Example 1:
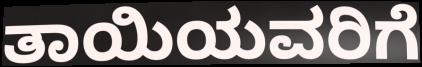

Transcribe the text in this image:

ತಾಯಿಯವರಿಗೆ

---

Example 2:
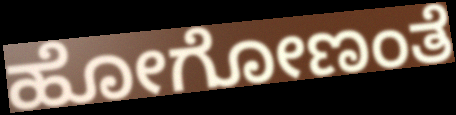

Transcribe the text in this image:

ಹೋಗೋಣಂತೆ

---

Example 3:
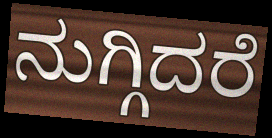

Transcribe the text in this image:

ನುಗ್ಗಿದರೆ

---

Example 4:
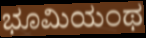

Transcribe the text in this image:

ಭೂಮಿಯಂಥ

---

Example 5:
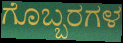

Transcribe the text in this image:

ಗೊಬ್ಬರಗಳ